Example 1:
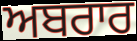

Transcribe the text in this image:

ਅਬਰਾਰ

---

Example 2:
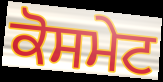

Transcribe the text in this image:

ਕੋਸਮੇਟ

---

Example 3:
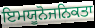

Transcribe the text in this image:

ਇਮਯੂਨੋਜਨਿਕਤਾ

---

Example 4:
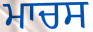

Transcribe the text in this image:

ਮਾਚਸ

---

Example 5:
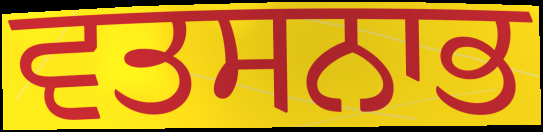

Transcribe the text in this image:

ਵਤਸਨਾਭ